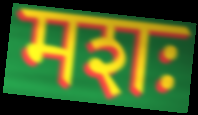
मशः